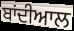
ਬਾਂਦੀਆਲ